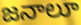
జనాలూ